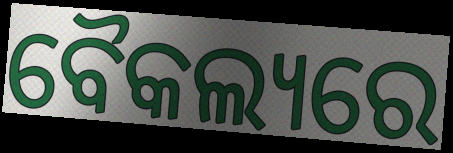
ବୈକଲ୍ୟରେ